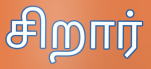
சிறார்